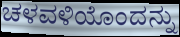
ಚಳವಳಿಯೊಂದನ್ನು